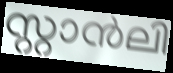
സ്റ്റാൻലി